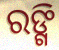
ରଙ୍ଗି